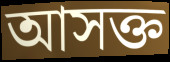
আসক্ত